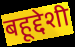
बहूद्देशी